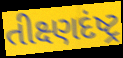
તીક્ષ્ણદંષ્ટ્ર